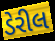
ડેરીલ